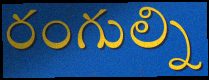
రంగుల్ని